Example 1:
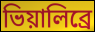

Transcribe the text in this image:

ভিয়ালিব্রে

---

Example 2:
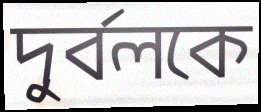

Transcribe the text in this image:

দুর্বলকে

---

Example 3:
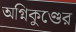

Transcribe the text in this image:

অগ্নিকুণ্ডের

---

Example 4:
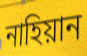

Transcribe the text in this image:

নাহিয়ান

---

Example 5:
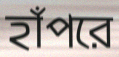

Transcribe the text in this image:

হাঁপরে